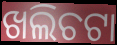
ଖଲିଚଟା